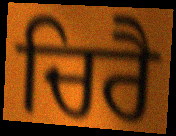
ਚਿਰੈ